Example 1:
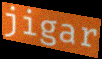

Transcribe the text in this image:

jigar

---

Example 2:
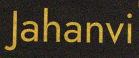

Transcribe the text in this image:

Jahanvi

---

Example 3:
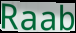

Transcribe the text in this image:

Raab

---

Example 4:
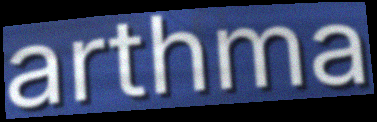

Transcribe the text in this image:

arthma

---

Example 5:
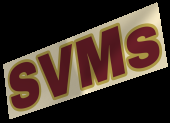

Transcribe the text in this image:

SVMs